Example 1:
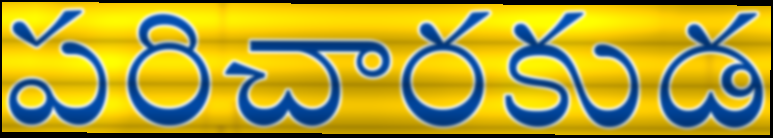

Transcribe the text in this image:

పరిచారకుడ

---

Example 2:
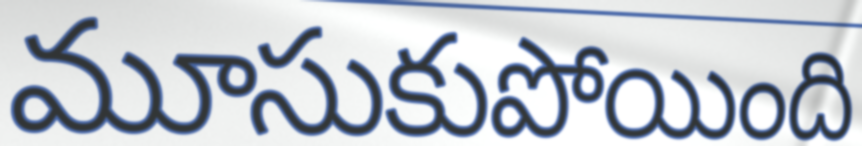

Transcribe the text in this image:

మూసుకుపోయింది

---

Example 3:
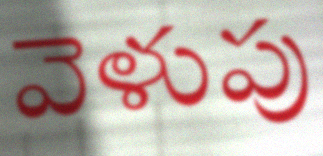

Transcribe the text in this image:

వెళుపు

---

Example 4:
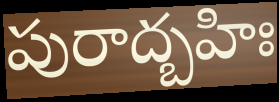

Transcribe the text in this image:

పురాద్బహిః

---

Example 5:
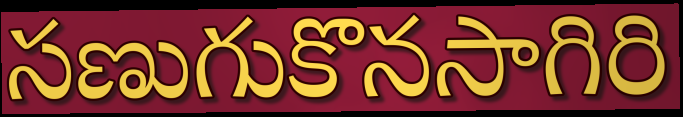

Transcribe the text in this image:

సణుగుకొనసాగిరి